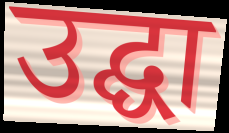
उद्घा